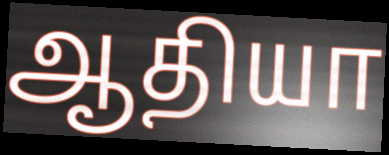
ஆதியா